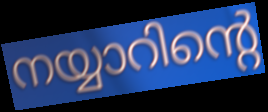
നയ്യാറിന്റെ